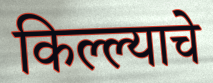
किल्ल्याचे